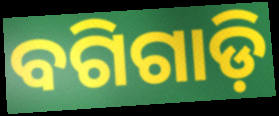
ବଗିଗାଡ଼ି